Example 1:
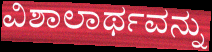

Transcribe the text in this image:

ವಿಶಾಲಾರ್ಥವನ್ನು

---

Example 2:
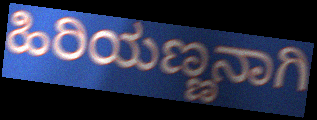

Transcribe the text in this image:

ಹಿರಿಯಣ್ಣನಾಗಿ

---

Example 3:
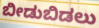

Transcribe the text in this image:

ಬೀಡುಬಿಡಲು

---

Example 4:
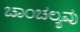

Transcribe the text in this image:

ಚಾಂಚಲ್ಯವು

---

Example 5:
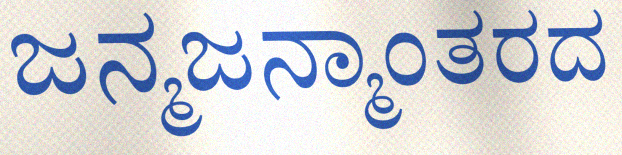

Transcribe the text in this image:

ಜನ್ಮಜನ್ಮಾಂತರದ